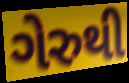
ગેરુથી